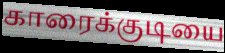
காரைக்குடியை